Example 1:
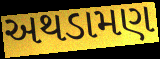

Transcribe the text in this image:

અથડામણ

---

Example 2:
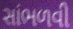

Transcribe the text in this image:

સાંભળવી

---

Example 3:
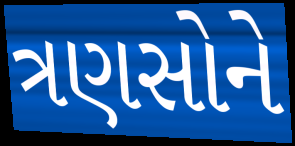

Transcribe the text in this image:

ત્રણસોને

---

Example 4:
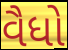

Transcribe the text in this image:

વૈધો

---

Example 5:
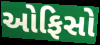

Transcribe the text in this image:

ઓફિસો